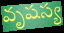
వృషస్య